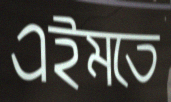
এইমতে